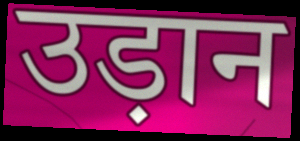
उड़ान